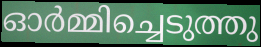
ഓർമ്മിച്ചെടുത്തു